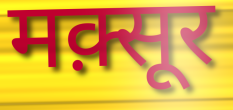
मक़्सूर